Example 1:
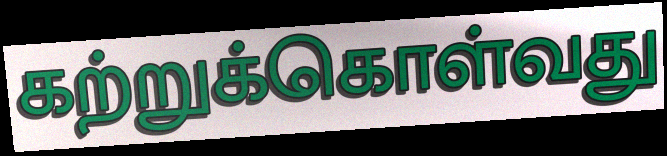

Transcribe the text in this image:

கற்றுக்கொள்வது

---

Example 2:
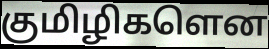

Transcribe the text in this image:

குமிழிகளென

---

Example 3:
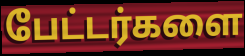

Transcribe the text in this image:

பேட்டர்களை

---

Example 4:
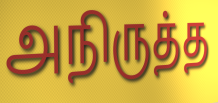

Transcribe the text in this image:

அநிருத்த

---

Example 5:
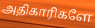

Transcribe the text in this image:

அதிகாரிகளே